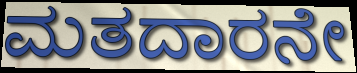
ಮತದಾರನೇ